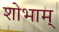
शोभाम्